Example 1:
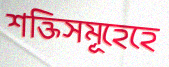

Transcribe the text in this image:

শক্তিসমূহেহে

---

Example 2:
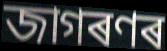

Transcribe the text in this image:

জাগৰণৰ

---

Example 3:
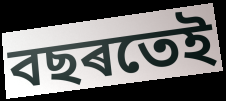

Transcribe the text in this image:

বছৰতেই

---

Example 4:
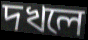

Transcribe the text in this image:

দখলে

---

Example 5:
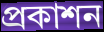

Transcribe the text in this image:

প্ৰকাশন